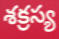
శక్రస్య